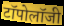
टॉपोलॉजी